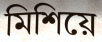
মিশিয়ে